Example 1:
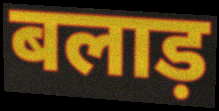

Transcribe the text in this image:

बलाड़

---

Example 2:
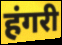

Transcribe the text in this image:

हंगरी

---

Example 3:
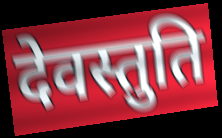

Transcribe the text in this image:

देवस्तुति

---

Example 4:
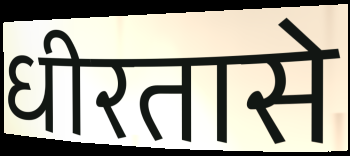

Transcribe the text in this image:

धीरतासे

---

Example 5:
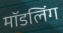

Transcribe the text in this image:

मॉडलिंग